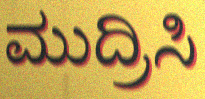
ಮುದ್ರಿಸಿ